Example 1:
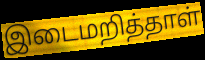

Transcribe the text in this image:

இடைமறித்தாள்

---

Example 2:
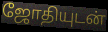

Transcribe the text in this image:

ஜோதியுடன்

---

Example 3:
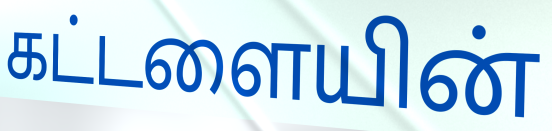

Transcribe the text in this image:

கட்டளையின்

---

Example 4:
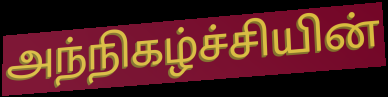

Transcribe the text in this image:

அந்நிகழ்ச்சியின்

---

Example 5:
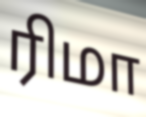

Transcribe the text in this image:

ரிமா